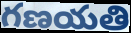
గణయతి